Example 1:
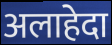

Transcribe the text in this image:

अलाहेदा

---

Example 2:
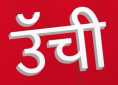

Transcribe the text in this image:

उॅची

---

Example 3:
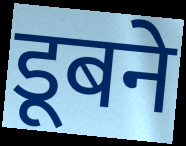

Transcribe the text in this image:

डूबने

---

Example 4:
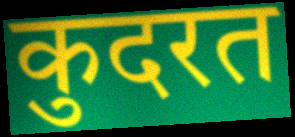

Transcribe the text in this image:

कुदरत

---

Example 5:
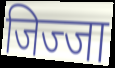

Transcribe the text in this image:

जिज्जा